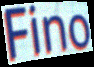
Fino